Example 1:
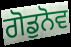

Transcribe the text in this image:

ਗੋਡੁਨੋਵ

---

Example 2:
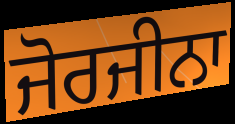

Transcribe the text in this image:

ਜੋਰਜੀਨਾ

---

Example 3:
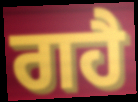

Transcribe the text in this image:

ਗਹੈ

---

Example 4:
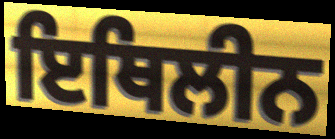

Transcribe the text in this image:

ਇਥਿਲੀਨ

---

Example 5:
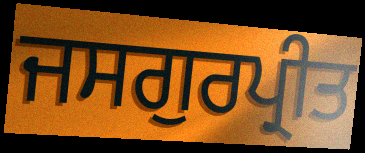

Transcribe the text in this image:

ਜਸਗੁਰਪ੍ਰੀਤ